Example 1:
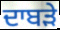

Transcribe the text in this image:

ਦਾਬੜੇ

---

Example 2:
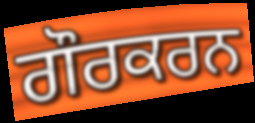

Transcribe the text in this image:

ਗੌਰਕਰਨ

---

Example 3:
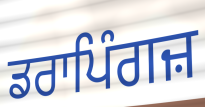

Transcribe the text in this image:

ਡਰਾਪਿੰਗਜ਼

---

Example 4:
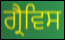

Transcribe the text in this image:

ਗ੍ਰੈਵਿਸ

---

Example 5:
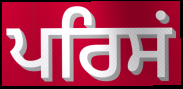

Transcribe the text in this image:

ਪਰਿਸਂ